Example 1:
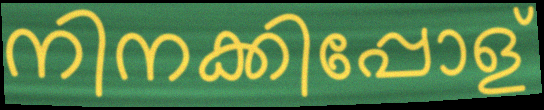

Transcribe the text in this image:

നിനക്കിപ്പോള്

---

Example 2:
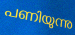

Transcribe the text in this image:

പണിയുന്നു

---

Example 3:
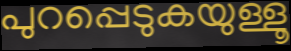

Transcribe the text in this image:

പുറപ്പെടുകയുള്ളൂ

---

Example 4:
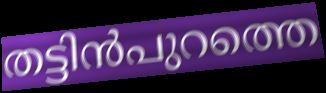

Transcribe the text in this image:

തട്ടിൻപുറത്തെ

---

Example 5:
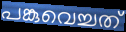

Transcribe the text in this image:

പങ്കുവെച്ചത്